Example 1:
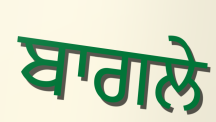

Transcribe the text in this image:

ਬਾਗਲੇ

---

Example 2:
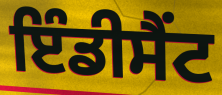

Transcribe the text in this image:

ਇੰਡੀਸੈਂਟ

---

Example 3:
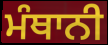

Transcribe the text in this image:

ਮੰਥਾਨੀ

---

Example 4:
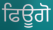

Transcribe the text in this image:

ਫਿਊਗੋ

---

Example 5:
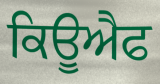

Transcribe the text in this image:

ਕਿਊਐਫ